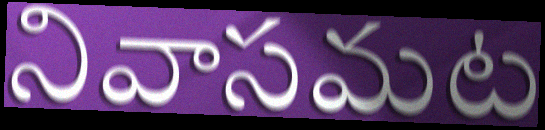
నివాసమట